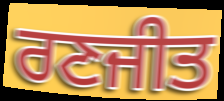
ਰਣਜੀਤ